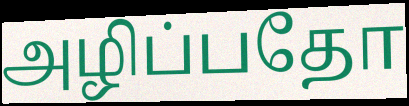
அழிப்பதோ